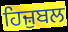
ਹਿਜ਼ੁਬਲ